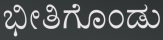
ಭೀತಿಗೊಂಡು